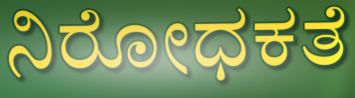
ನಿರೋಧಕತೆ